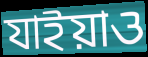
যাইয়াও